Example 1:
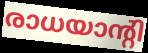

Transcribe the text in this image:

രാധയാന്റി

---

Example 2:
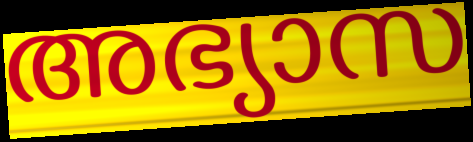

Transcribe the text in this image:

അഭ്യാസ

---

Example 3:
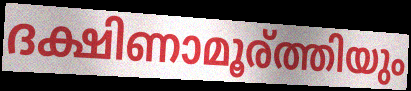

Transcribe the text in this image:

ദക്ഷിണാമൂര്ത്തിയും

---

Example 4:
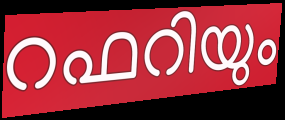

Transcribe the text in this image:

റഫറിയും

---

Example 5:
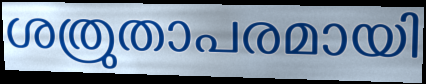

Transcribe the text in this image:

ശത്രുതാപരമായി